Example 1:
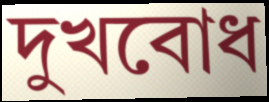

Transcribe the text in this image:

দুখবোধ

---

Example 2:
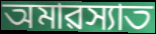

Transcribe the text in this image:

অমাৱস্যাত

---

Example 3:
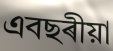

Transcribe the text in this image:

এবছৰীয়া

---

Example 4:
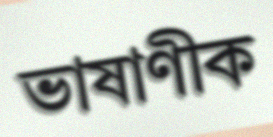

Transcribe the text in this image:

ভাষাণীক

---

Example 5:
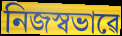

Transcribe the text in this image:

নিজস্বভাৱে